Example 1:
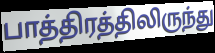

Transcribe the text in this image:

பாத்திரத்திலிருந்து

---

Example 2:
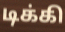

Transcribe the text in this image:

டிக்கி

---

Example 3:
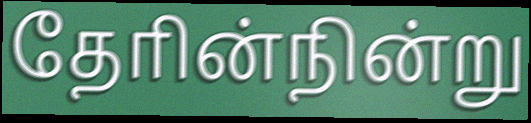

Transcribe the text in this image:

தேரின்நின்று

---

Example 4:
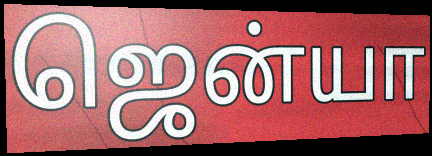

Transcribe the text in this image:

ஜென்யா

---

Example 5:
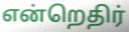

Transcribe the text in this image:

என்றெதிர்